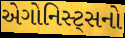
એગોનિસ્ટ્સનો